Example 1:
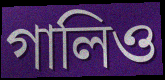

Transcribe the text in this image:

গালিও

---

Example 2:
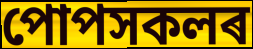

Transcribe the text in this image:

পোপসকলৰ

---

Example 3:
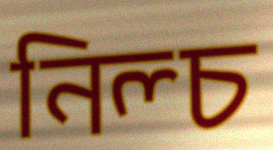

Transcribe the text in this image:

নিল্চ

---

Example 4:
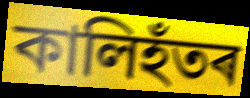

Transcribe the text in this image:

কালিহঁতৰ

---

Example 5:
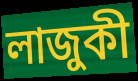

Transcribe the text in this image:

লাজুকী